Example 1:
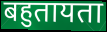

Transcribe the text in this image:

बहुतायता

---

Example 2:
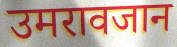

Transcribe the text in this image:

उमरावजान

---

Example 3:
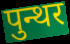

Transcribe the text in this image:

पुन्थर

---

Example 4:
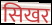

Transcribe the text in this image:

सिखर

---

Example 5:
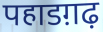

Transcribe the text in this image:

पहाडग़ढ़